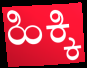
ಹಿಕ್ಕಿ